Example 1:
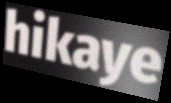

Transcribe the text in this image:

hikaye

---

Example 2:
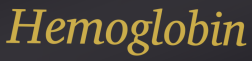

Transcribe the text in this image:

Hemoglobin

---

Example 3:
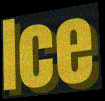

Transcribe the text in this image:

Ice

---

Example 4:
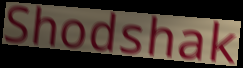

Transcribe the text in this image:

Shodshak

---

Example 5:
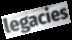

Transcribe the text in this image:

legacies